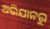
ଅଭିଯାନରୁ